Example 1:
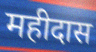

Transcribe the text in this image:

महीदास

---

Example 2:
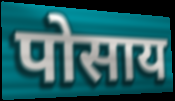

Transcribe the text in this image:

पोसाय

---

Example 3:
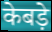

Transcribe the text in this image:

केबड़े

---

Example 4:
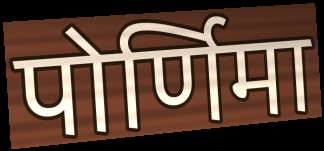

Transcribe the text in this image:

पोर्णिमा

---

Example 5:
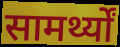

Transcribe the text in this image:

सामर्थ्यों